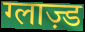
ग्लाज़्ड